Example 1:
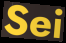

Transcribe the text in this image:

Sei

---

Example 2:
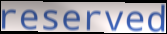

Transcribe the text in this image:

reserved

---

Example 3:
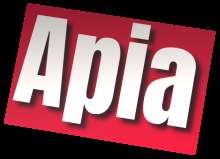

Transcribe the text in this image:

Apia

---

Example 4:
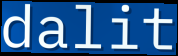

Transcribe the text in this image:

dalit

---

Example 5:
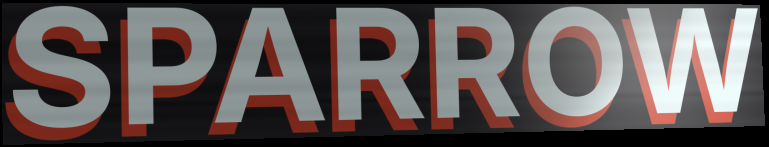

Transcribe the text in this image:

SPARROW